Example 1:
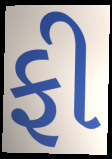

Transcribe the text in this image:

ફી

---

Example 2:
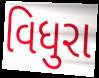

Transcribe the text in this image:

વિધુરા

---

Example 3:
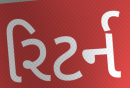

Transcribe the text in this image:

રિટર્ન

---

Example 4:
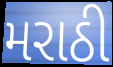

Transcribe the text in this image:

મરાઠી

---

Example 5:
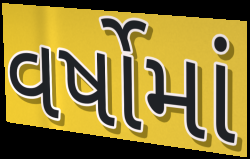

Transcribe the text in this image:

વર્ષોમાં